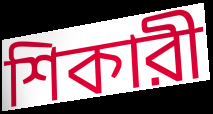
শিকারী